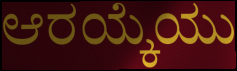
ಆರಯ್ಕೆಯು